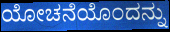
ಯೋಚನೆಯೊಂದನ್ನು